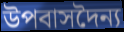
উপবাসদৈন্য